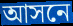
আসনে